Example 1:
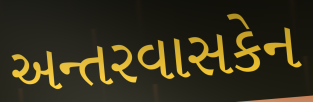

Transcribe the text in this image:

અન્તરવાસકેન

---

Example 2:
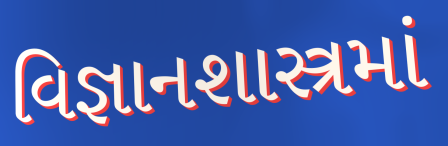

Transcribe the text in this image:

વિજ્ઞાનશાસ્ત્રમાં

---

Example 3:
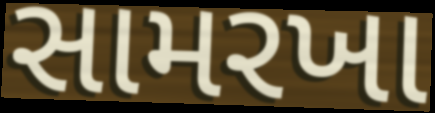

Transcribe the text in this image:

સામરખા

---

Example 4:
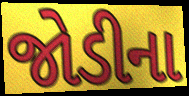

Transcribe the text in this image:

જોડીના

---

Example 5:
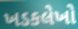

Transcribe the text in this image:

ખડકલેખો